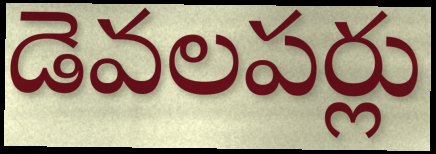
డెవలపర్లు